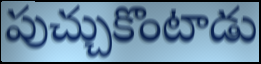
పుచ్చుకొంటాడు